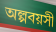
অল্পবয়সী